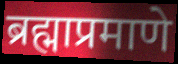
ब्रह्माप्रमाणे